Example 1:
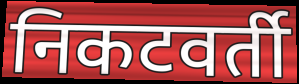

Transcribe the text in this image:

निकटवर्ती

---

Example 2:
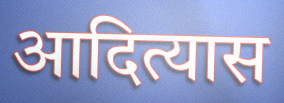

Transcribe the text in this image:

आदित्यास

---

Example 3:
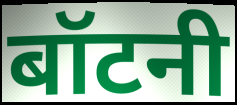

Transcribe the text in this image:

बॉटनी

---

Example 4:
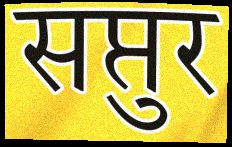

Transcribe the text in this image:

सप्तुर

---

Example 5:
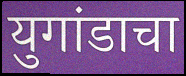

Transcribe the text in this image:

युगांडाचा